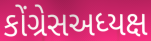
કોંગ્રેસઅધ્યક્ષ